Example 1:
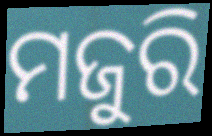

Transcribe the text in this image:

ମଜୁରି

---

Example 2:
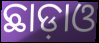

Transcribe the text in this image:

ଛାଡ଼ାଓ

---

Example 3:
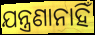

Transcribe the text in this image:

ଯନ୍ତ୍ରଣାନାହିଁ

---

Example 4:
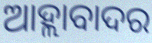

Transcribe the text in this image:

ଆହ୍ଲାବାଦର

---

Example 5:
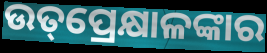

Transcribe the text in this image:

ଉତ୍‌ପ୍ରେକ୍ଷାଳଙ୍କାର